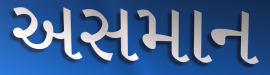
અસમાન